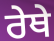
ਰੇਥੇ